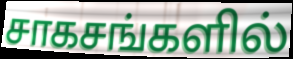
சாகசங்களில்